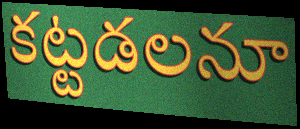
కట్టడలనూ